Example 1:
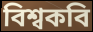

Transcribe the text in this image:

বিশ্বকবি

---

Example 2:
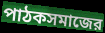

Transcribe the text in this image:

পাঠকসমাজের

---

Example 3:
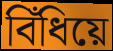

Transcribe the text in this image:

বিঁধিয়ে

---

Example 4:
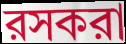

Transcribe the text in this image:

রসকরা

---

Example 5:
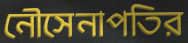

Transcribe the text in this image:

নৌসেনাপতির